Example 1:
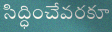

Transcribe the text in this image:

సిద్ధించేవరకూ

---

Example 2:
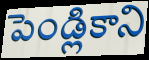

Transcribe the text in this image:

పెండ్లికాని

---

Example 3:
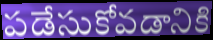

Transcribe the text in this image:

పడేసుకోవడానికి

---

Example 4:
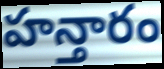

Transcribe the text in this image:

హన్తారం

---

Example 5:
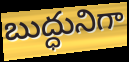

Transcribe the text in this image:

బుద్ధునిగా